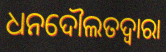
ଧନଦୌଲତଦ୍ଵାରା